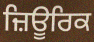
ਜ਼ਿਊਰਿਕ